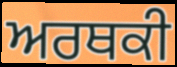
ਅਰਥਕੀ